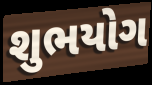
શુભયોગ